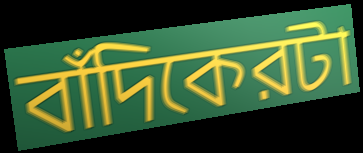
বাঁদিকেরটা